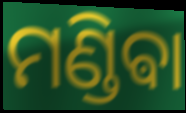
ମଣ୍ଡିଵା